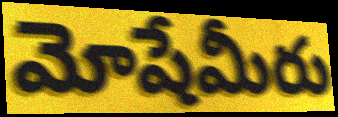
మోషేమీరు